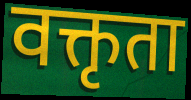
वक्तृता